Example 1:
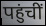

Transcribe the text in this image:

पहुंचीं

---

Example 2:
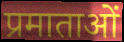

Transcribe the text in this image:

प्रमाताओं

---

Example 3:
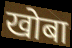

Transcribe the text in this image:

खोबा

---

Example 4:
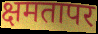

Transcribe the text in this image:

क्षमतापर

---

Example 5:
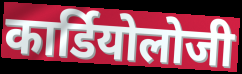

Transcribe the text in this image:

कार्डियोलोजी